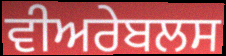
ਵੀਅਰੇਬਲਸ